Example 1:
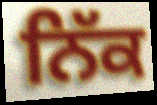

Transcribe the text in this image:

ਨਿੱਕ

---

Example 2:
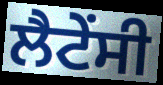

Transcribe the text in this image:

ਲੈਟੇਂਸੀ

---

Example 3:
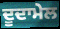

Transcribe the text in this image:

ਦੂਦਾਮੇਲ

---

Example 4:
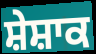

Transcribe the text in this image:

ਸ਼ੇਸ਼ਾਕ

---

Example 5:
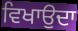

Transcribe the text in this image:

ਵਿਖਾਉਦਾ